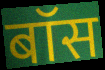
बॉस